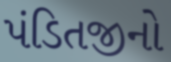
પંડિતજીનો